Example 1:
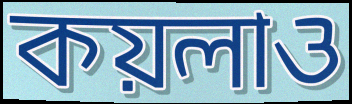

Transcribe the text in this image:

কয়লাও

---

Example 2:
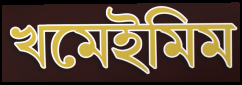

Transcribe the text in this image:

খমেইমিম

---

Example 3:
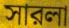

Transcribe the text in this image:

সারলা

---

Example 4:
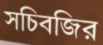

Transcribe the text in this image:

সচিবজির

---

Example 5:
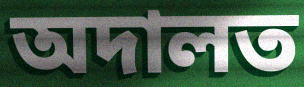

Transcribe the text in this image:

অদালত